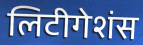
लिटीगेशंस